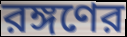
রঙ্গণের